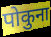
पोकुना